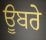
ਊਬਰੇ